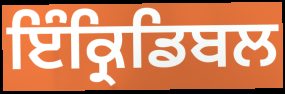
ਇੰਕ੍ਰਿਡਿਬਲ